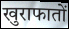
खुराफातों